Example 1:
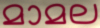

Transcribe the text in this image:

മാമല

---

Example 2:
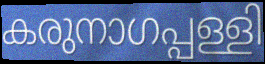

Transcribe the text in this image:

കരുനാഗപ്പള്ളി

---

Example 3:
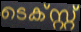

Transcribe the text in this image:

ടെക്സ്റ്റ്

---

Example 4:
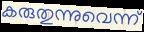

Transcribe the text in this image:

കരുതുന്നുവെന്ന്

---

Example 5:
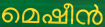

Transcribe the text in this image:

മെഷീൻ